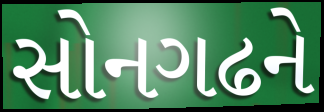
સોનગઢને